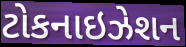
ટોકનાઇઝેશન